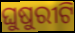
ଘୁଷୁରୀଟି